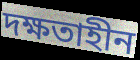
দক্ষতাহীন